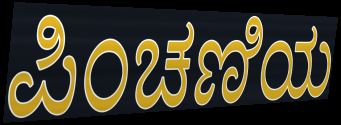
ಪಿಂಚಣಿಯ